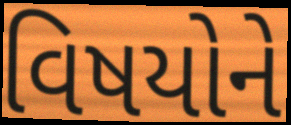
વિષયોને